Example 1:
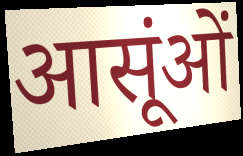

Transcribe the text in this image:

आसूंओं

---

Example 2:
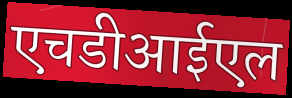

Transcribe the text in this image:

एचडीआईएल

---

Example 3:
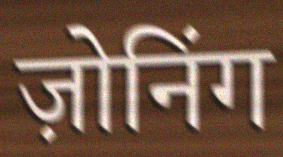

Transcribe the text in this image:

ज़ोनिंग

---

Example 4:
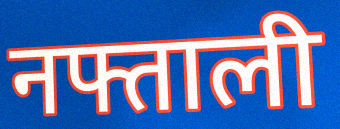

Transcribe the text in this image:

नफ्ताली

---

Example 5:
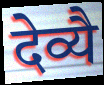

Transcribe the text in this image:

देव्यै